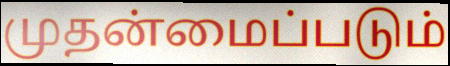
முதன்மைப்படும்